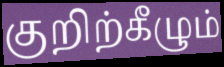
குறிற்கீழும்